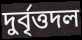
দুর্বৃত্তদল